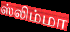
ஸ்லிம்மா